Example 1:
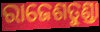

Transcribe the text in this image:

ରାଜେଶତୁଣ୍ଡା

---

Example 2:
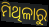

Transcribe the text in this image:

ମିଥିଳାରୁ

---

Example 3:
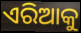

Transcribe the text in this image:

ଏରିଆକୁ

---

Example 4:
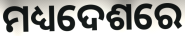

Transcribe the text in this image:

ମଧ୍ୟଦେଶରେ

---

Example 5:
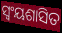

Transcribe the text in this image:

ସ୍ୱଂୟଶାସିତ